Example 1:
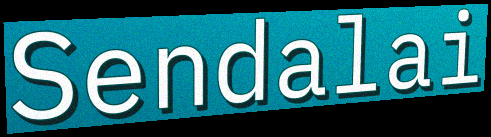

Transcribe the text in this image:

Sendalai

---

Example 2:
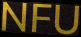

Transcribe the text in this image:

NFU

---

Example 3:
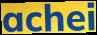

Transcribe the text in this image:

achei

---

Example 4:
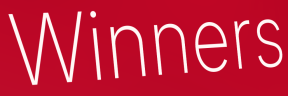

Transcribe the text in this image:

Winners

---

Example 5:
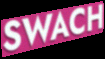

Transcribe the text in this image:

SWACH